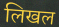
लिखल